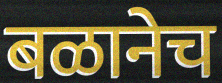
बळानेच